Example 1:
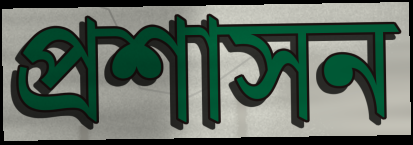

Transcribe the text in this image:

প্রশাসন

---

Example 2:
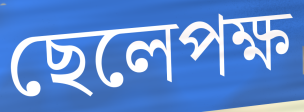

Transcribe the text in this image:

ছেলেপক্ষ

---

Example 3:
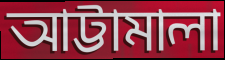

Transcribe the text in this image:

আট্টামালা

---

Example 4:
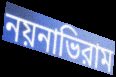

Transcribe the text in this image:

নয়নাভিরাম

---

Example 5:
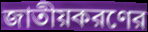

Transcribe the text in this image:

জাতীয়করণের